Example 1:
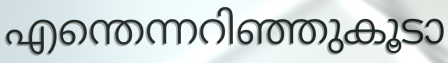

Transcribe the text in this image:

എന്തെന്നറിഞ്ഞുകൂടാ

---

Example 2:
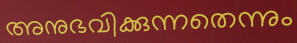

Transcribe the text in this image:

അനുഭവിക്കുന്നതെന്നും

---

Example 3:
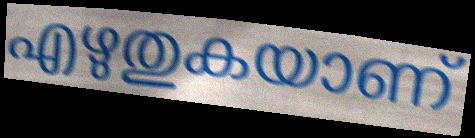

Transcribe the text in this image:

എഴുതുകയാണ്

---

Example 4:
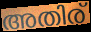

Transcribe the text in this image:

അതിര്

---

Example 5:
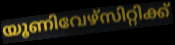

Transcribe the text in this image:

യൂണിവേഴ്സിറ്റിക്ക്